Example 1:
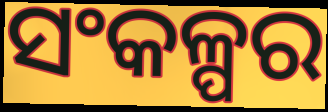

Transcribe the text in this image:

ସଂକଳ୍ପର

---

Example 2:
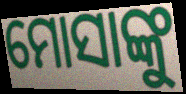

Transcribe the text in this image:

ମୋସାଙ୍କୁ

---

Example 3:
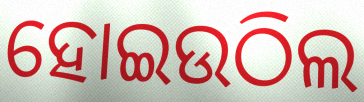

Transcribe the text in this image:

ହୋଇଉଠିଲ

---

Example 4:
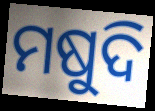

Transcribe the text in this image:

ମଷୁଦି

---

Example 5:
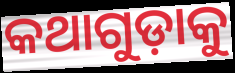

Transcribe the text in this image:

କଥାଗୁଡ଼ାକୁ